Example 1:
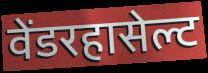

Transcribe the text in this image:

वेंडरहासेल्ट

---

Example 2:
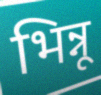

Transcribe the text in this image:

भिन्नू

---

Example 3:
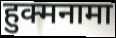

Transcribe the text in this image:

हुक्मनामा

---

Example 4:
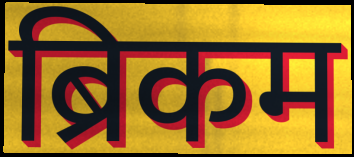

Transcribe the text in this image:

ब्रिकम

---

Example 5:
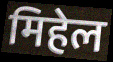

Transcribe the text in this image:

मिहेल